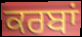
ਕਰਬਾਂ